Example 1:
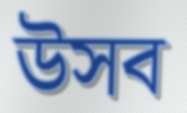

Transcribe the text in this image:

উসব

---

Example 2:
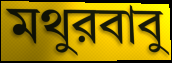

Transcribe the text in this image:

মথুরবাবু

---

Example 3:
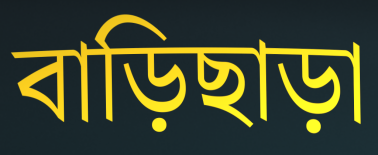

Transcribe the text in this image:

বাড়িছাড়া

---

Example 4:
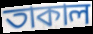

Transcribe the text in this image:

তাকাল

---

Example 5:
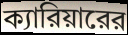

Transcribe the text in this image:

ক্যারিয়ারের